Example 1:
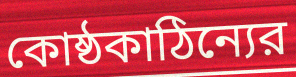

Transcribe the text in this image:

কোষ্ঠকাঠিন্যের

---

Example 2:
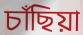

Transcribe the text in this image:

চাঁছিয়া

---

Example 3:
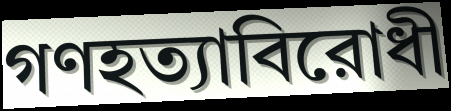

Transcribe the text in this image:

গণহত্যাবিরোধী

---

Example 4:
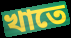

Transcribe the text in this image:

খাতে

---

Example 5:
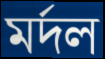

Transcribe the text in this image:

মর্দল